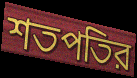
শতপতির